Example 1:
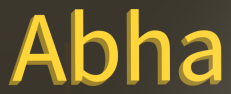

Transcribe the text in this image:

Abha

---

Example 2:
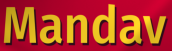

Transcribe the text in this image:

Mandav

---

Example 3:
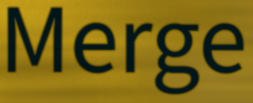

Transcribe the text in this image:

Merge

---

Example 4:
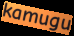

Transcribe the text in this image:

kamugu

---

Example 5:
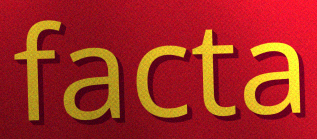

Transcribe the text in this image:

facta